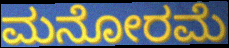
ಮನೋರಮೆ